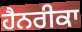
ਹੈਨਰੀਕਾ